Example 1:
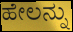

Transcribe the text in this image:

ಹೇಲನ್ನು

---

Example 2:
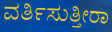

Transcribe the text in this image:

ವರ್ತಿಸುತ್ತೀರಾ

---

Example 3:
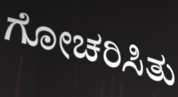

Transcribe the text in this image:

ಗೋಚರಿಸಿತು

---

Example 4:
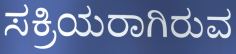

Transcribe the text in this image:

ಸಕ್ರಿಯರಾಗಿರುವ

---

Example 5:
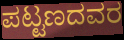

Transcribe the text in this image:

ಪಟ್ಟಣದವರ